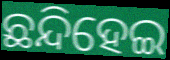
ଛନ୍ଦିହେଇ